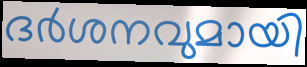
ദർശനവുമായി